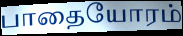
பாதையோரம்